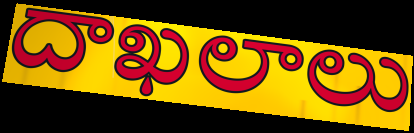
దాఖలాలు